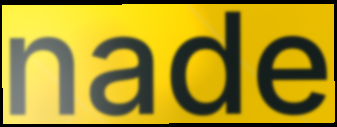
nade